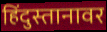
हिंदुस्तानावर